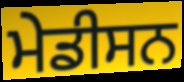
ਮੇਡੀਸਨ